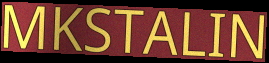
MKSTALIN